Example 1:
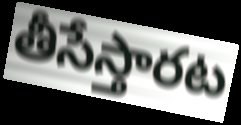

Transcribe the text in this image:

తీసేస్తారట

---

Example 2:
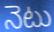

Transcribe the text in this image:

నెటు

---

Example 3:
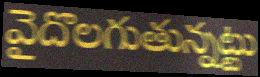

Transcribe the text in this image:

వైదొలగుతున్నట్టు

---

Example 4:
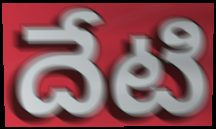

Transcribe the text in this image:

దేటి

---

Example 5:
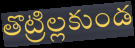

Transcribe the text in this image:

తొట్రిల్లకుండ